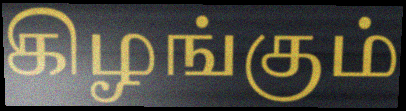
கிழங்கும்